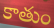
కాతుం